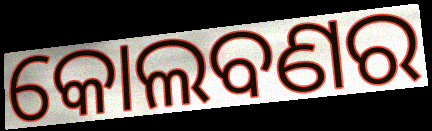
କୋଲବଣର